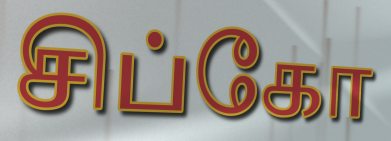
சிப்கோ